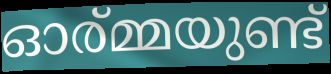
ഓര്മ്മയുണ്ട്